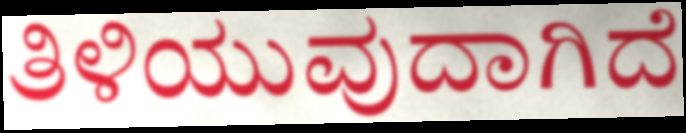
ತಿಳಿಯುವುದಾಗಿದೆ